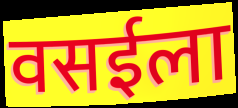
वसईला